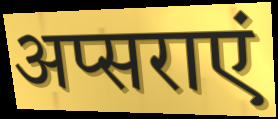
अप्सराएं